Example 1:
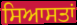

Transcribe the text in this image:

ਸਿਆਸਤਾਂ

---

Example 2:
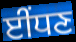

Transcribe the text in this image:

ਈਂਧਣ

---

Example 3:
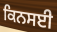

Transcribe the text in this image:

ਕਿਨਸਈ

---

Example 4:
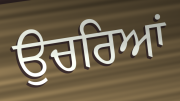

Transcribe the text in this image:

ਉਚਰਿਆਂ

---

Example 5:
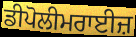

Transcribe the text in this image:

ਡੀਪੋਲੀਮਰਾਈਜ਼